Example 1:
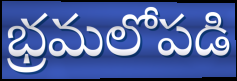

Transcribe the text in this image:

భ్రమలోపడి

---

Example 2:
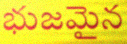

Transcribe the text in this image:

భుజమైన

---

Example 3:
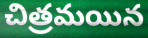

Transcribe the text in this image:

చిత్రమయిన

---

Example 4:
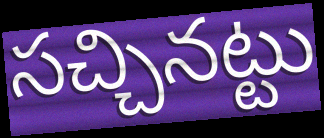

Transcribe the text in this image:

సచ్చినట్టు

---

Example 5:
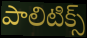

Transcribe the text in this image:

పాలిటిక్స్